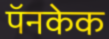
पॅनकेक